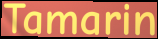
Tamarin